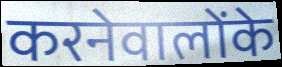
करनेवालोंके